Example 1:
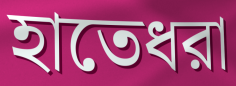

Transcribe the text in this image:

হাতেধরা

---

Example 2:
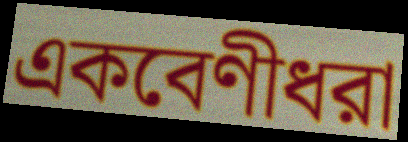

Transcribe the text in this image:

একবেণীধরা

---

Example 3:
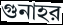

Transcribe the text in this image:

গুনাহর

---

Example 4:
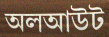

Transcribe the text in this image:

অলআউট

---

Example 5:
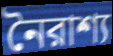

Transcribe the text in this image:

নৈরাশ্য